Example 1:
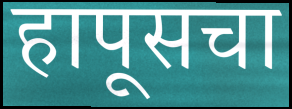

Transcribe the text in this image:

हापूसचा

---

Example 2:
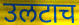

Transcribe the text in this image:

उलटाच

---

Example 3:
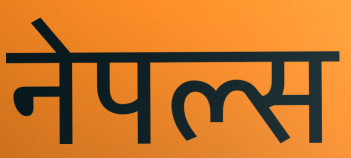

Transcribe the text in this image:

नेपल्स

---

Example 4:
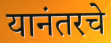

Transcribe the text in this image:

यानंतरचे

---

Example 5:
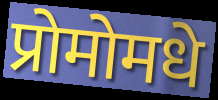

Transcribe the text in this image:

प्रोमोमधे